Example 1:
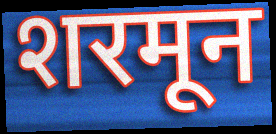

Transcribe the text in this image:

शरमून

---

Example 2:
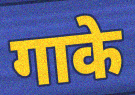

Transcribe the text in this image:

गाके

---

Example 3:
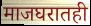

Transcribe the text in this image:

माजघरातही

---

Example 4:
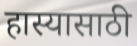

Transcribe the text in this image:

हास्यासाठी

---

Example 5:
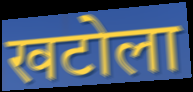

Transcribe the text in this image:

खटोला